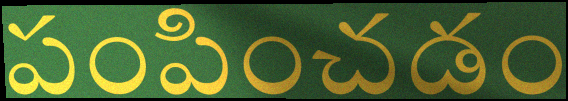
పంపించడం